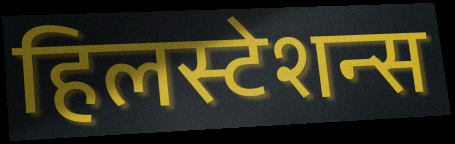
हिलस्टेशन्स